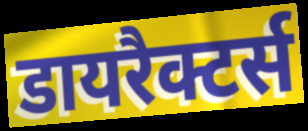
डायरैक्टर्स